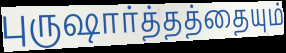
புருஷார்த்தத்தையும்